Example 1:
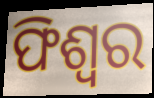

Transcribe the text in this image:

ଫିଶ୍ୱର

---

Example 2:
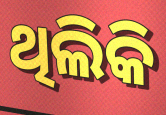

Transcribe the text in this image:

ଥିଲିକି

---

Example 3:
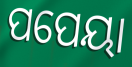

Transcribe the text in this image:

ପପେୟା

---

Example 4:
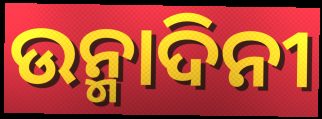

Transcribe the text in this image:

ଉନ୍ମାଦିନୀ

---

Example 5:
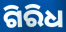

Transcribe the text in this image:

ଗିରିଧ